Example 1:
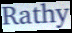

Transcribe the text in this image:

Rathy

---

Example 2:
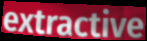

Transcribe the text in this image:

extractive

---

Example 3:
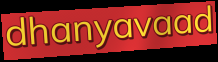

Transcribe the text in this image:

dhanyavaad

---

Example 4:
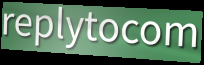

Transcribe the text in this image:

replytocom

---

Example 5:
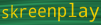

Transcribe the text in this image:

skreenplay